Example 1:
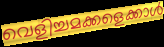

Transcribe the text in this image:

വെളിച്ചമക്കളെക്കാൾ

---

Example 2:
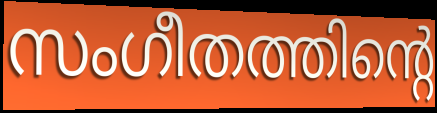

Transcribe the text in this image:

സംഗീതത്തിന്റെ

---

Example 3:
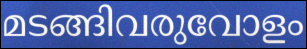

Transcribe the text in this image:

മടങ്ങിവരുവോളം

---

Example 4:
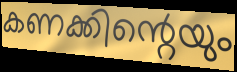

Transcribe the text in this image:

കണക്കിന്റെയും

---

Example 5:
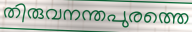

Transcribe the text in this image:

തിരുവനന്തപുരത്തെ